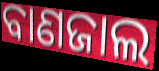
ବାଣଜାଲ